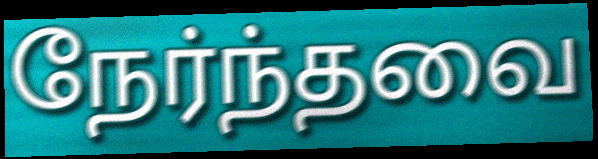
நேர்ந்தவை